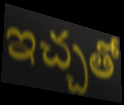
ఇచ్చతో